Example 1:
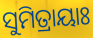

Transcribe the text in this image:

ସୁମିତ୍ରାୟାଃ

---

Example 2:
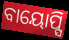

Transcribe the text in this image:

ବାୟୋପ୍ସି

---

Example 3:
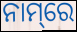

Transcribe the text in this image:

ନାମ୍‌ରେ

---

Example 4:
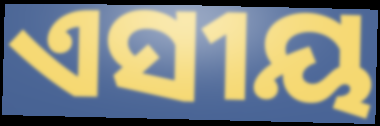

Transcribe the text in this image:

ଏସୀୟ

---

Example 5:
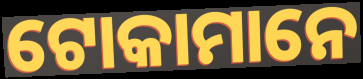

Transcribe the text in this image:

ଟୋକାମାନେ